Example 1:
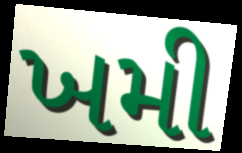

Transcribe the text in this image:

ખમી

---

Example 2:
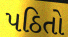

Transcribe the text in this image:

પઠિતો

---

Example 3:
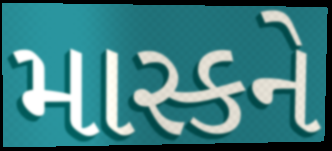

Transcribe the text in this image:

માસ્કને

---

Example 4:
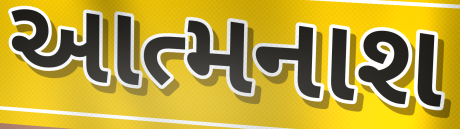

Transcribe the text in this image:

આત્મનાશ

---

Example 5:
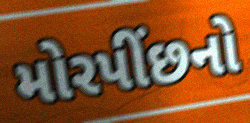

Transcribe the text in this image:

મોરપીંછનો